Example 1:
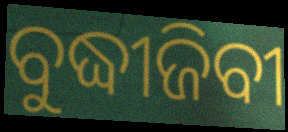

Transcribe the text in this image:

ବୁଦ୍ଧୀଜିବୀ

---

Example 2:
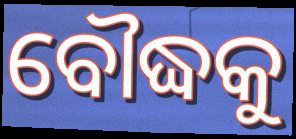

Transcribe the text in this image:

ବୌଦ୍ଧକୁ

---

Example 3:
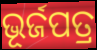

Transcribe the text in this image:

ଭୂର୍ଜପତ୍ର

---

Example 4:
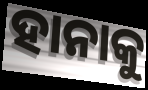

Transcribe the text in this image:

ହାନାକୁ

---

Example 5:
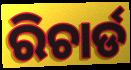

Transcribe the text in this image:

ରିଚାର୍ଡ